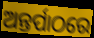
ଅନ୍ତର୍ପାଠରେ